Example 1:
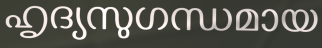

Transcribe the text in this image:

ഹൃദ്യസുഗന്ധമായ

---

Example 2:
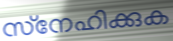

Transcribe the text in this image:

സ്‌നേഹിക്കുക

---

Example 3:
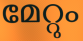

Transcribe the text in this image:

മേറ്റും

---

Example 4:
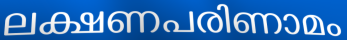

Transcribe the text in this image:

ലക്ഷണപരിണാമം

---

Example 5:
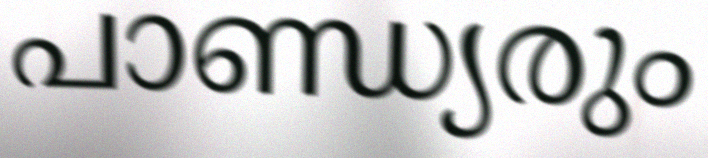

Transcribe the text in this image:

പാണ്ഡ്യരും